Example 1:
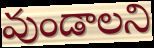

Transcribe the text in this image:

వుండాలని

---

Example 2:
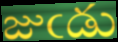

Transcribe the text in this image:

జుఁడు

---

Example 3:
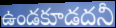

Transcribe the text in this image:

ఉండకూడదనీ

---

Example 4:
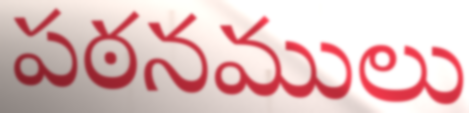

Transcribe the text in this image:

పఠనములు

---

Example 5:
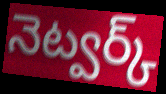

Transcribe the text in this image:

నెట్వర్క్